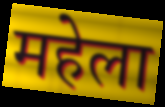
महेला